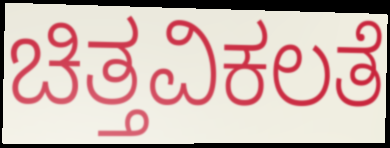
ಚಿತ್ತವಿಕಲತೆ